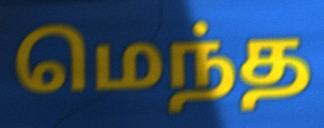
மெந்த